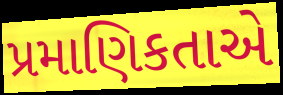
પ્રમાણિકતાએ